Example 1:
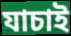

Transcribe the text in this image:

যাচাই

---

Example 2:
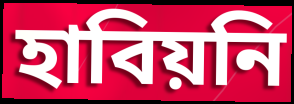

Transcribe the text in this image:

হাবিয়নি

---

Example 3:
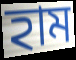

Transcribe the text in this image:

হাম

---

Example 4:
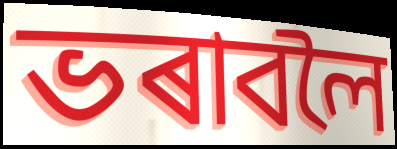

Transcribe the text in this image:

ভৰাবলৈ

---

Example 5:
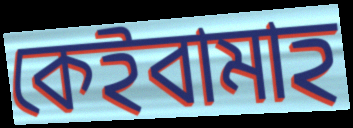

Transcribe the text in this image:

কেইবামাহ